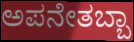
ಅಪನೇತಬ್ಬಾ